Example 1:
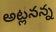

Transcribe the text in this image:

అట్లనన్న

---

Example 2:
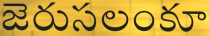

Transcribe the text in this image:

జెరుసలంకూ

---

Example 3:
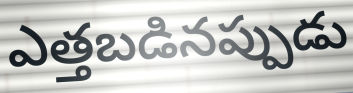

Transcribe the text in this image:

ఎత్తబడినప్పుడు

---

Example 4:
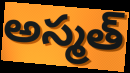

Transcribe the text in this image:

అస్మత్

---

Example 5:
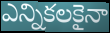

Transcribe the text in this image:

ఎన్నికలకైనా